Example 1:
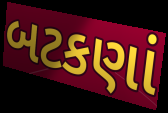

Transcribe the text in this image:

બટકણાં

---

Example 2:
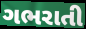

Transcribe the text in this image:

ગભરાતી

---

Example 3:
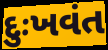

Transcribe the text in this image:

દુઃખવંત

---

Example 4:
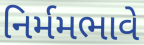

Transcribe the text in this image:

નિર્મમભાવે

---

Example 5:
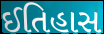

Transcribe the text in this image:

ઈતિહાસ